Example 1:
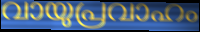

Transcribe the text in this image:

വായുപ്രവാഹം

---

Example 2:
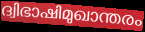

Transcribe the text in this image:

ദ്വിഭാഷിമുഖാന്തരം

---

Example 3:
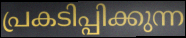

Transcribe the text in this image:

പ്രകടിപ്പിക്കുന്ന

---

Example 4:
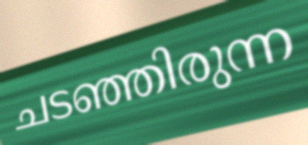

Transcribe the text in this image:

ചടഞ്ഞിരുന്ന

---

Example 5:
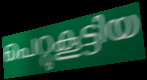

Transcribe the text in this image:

പെറ്റുകൂട്ടിയ